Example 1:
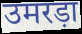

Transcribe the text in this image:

उमरड़ा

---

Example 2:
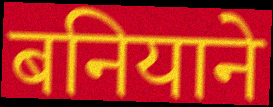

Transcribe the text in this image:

बनियाने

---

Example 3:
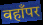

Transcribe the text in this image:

वहाँपर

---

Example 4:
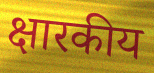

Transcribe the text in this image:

क्षारकीय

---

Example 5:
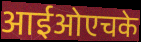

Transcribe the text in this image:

आईओएचके